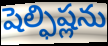
షెల్ఫిష్లను